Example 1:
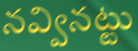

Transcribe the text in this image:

నవ్వినట్టు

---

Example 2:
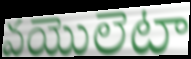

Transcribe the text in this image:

వయొలెటా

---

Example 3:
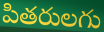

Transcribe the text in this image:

పితరులగు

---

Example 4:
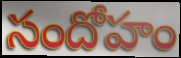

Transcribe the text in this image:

సందోహం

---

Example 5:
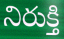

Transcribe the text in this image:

నిరుక్తి